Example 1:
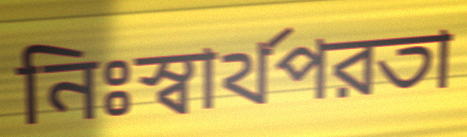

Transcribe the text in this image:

নিঃস্বার্থপরতা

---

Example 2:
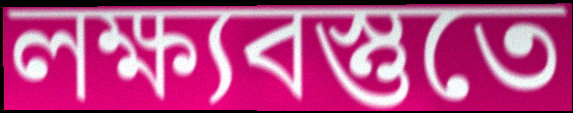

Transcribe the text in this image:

লক্ষ্যবস্তুতে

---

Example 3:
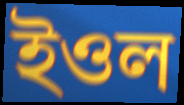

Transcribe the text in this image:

ইওল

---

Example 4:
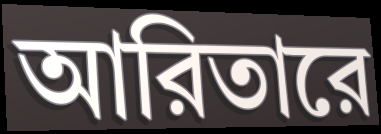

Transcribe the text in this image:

আরিতারে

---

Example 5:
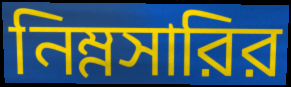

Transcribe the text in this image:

নিম্নসারির